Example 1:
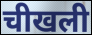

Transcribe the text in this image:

चीखली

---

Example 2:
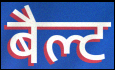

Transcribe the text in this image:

बैल्ट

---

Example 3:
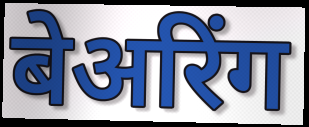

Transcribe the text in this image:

बेअरिंग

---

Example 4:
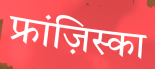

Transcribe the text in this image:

फ्रांज़िस्का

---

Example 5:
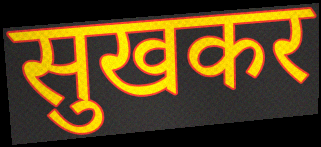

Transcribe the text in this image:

सुखकर